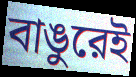
বাঙুরেই